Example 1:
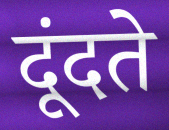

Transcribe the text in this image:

दूंदते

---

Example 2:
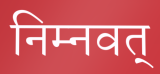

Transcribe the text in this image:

निम्नवत्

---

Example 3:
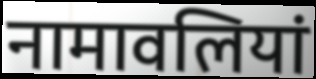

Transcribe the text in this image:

नामावलियां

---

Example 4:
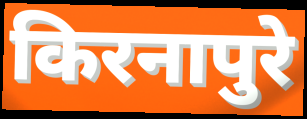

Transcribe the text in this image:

किरनापुरे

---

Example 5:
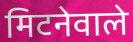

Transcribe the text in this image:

मिटनेवाले